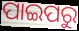
ପାଇପରୁ